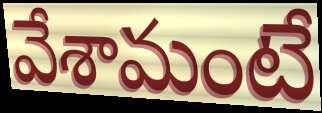
వేశామంటే